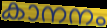
കാനനം